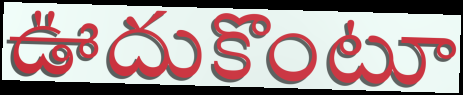
ఊదుకొంటూ